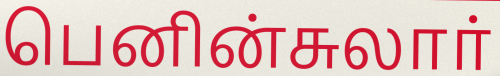
பெனின்சுலார்